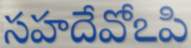
సహదేవోఽపి